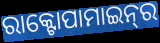
ରାକ୍ଟୋପାମାଇନ୍‌ର